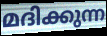
മദിക്കുന്ന